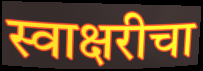
स्वाक्षरीचा